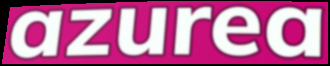
azurea